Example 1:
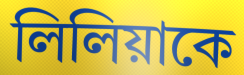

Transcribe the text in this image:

লিলিয়াকে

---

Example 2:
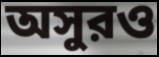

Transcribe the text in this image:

অসুরও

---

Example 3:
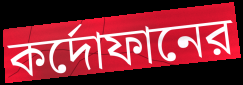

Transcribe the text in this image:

কর্দোফানের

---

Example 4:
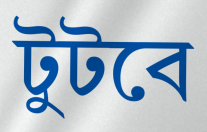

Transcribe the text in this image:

টুটবে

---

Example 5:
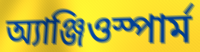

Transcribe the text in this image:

অ্যাঞ্জিওস্পার্ম